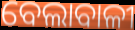
ବେଲାବାଳୀ